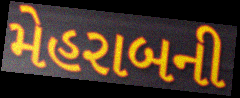
મેહરાબની